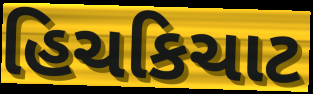
હિચકિચાટ